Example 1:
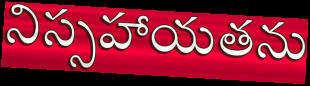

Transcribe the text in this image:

నిస్సహాయతను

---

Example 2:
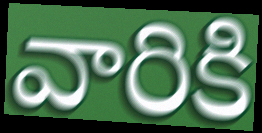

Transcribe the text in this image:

వారికి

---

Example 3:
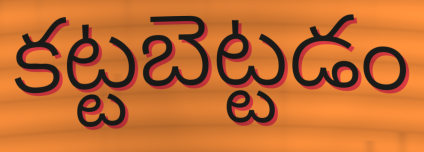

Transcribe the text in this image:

కట్టబెట్టడం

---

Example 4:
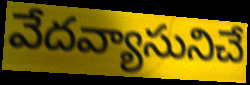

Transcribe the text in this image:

వేదవ్యాసునిచే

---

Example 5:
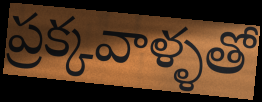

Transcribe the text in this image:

ప్రక్కవాళ్ళతో